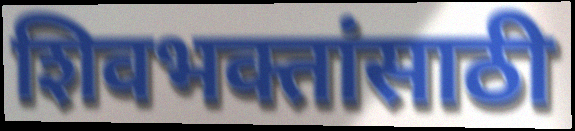
शिवभक्तांसाठी